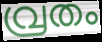
വ്രതം